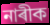
নাৰীক